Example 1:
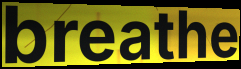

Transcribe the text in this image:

breathe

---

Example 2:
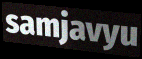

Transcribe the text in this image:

samjavyu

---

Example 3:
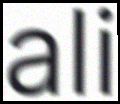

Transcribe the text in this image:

ali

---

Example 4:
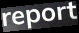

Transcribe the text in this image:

report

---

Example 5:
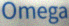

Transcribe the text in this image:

Omega